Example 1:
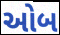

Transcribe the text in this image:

ઓબ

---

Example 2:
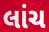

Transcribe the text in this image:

લાંચ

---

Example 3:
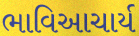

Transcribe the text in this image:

ભાવિઆચાર્ય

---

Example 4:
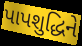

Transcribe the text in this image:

પાપશુદ્ધિને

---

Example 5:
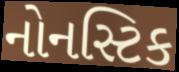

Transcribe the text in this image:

નોનસ્ટિક